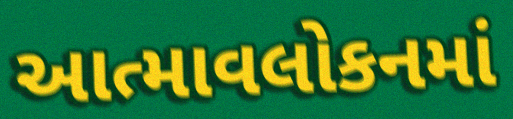
આત્માવલોકનમાં